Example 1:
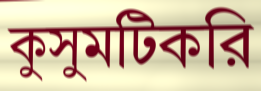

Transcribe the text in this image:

কুসুমটিকরি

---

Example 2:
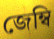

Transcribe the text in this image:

জেম্বি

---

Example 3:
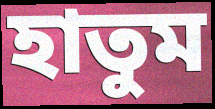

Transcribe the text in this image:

হাতুম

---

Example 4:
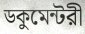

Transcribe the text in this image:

ডকুমেন্টরী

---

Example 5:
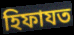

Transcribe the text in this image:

হিফাযত